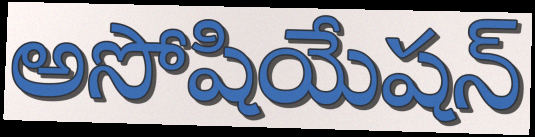
అసోషియేషన్